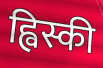
ह्विस्की